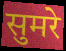
सुमरे